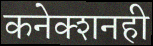
कनेक्शनही